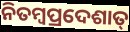
ନିତମ୍ବପ୍ରଦେଶାତ୍